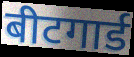
बीटगार्ड